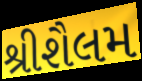
શ્રીશૈલમ